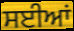
ਸਈਆਂ